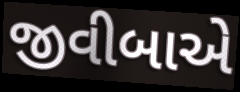
જીવીબાએ